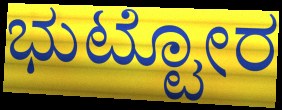
ಭುಟ್ಟೋರ